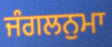
ਜੰਗਲਨੁਮਾ